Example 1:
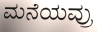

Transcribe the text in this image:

ಮನೆಯವ್ರು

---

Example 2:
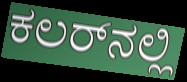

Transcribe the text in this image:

ಕಲರ್‌ನಲ್ಲಿ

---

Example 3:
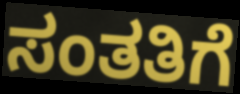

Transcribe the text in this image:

ಸಂತತಿಗೆ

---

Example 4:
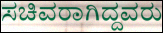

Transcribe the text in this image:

ಸಚಿವರಾಗಿದ್ದವರು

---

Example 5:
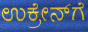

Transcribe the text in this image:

ಉಕ್ರೇನ್‌ಗೆ